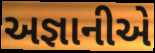
અજ્ઞાનીએ